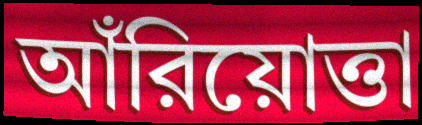
আঁরিয়োত্তা